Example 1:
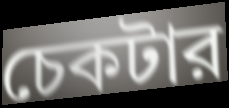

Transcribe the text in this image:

চেকটার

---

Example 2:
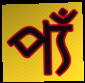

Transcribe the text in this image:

প্যঁ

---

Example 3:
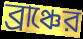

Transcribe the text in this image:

ব্রাঞ্চের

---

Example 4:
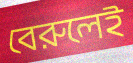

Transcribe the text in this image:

বেরুলেই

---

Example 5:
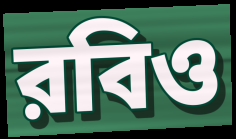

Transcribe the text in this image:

রবিও